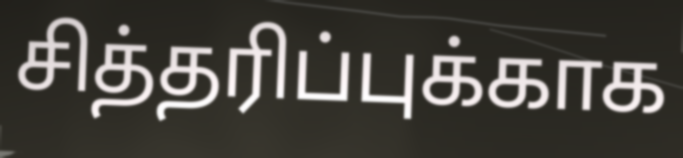
சித்தரிப்புக்காக